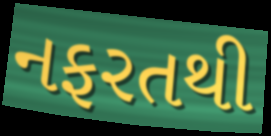
નફરતથી